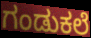
ಗಂಡುಕಲೆ